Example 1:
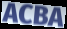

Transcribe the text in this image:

ACBA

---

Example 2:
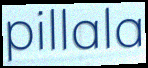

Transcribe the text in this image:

pillala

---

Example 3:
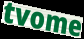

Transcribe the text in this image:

tvome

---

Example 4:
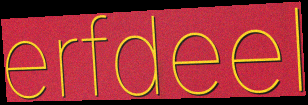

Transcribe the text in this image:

erfdeel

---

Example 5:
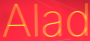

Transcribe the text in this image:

Alad